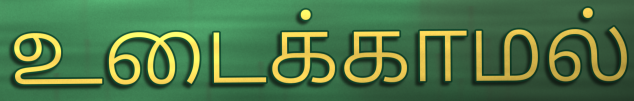
உடைக்காமல்